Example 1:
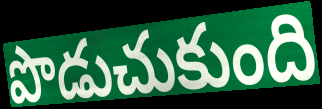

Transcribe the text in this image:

పొడుచుకుంది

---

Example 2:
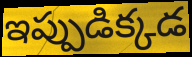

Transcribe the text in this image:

ఇప్పుడిక్కడ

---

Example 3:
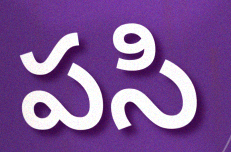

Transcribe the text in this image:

పసి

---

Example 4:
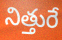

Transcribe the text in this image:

నిత్తురే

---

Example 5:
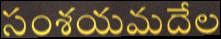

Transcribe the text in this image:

సంశయమదేల